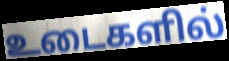
உடைகளில்